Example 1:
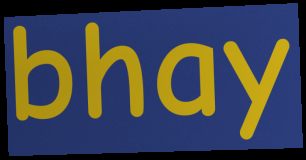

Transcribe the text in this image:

bhay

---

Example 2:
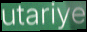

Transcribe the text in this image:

utariye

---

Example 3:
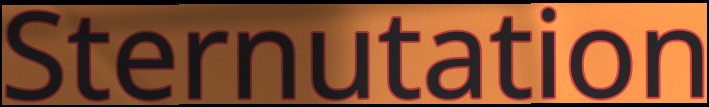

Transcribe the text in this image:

Sternutation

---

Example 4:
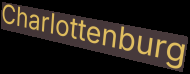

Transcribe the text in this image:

Charlottenburg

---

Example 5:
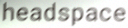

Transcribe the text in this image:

headspace